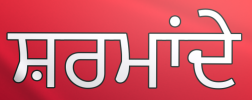
ਸ਼ਰਮਾਂਦੇ